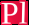
Pl